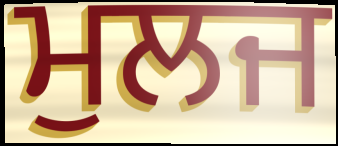
ਮੁਲਜ